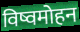
विष्वमोहन